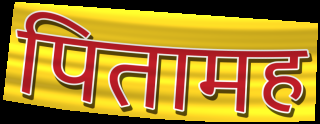
पितामह